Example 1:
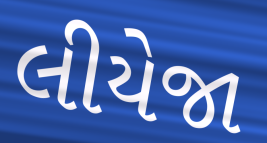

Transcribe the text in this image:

લીયેજા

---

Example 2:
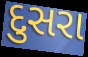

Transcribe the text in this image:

દુસરા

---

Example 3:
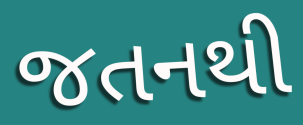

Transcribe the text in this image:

જતનથી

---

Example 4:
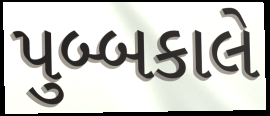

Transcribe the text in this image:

પુબ્બકાલે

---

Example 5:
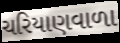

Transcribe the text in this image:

ચરિયાણવાળા